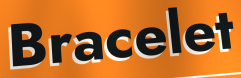
Bracelet